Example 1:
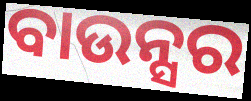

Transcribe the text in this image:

ବାଉନ୍ସର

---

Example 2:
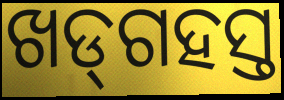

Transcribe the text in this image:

ଖଡ୍‌ଗହସ୍ତ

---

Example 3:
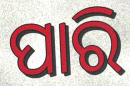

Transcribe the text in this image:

ପାରି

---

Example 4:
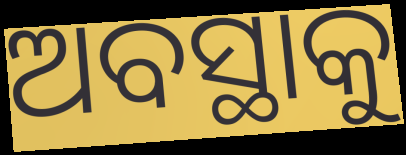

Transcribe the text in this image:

ଅବସ୍ଥାକୁ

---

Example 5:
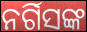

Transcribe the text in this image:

ନର୍ଗିସଙ୍କ